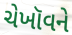
ચેખૉવને